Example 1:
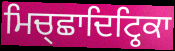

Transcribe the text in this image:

ਮਿਚ੍ਛਾਦਿਟ੍ਠਿਕਾ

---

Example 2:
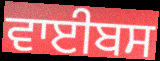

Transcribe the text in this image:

ਵਾਈਬਸ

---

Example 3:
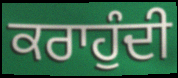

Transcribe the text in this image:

ਕਰਾਹੁੰਦੀ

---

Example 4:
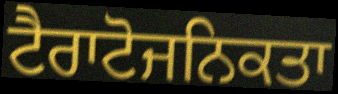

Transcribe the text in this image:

ਟੈਰਾਟੋਜਨਿਕਤਾ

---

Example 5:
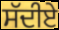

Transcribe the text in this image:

ਸੱਦੀਏ